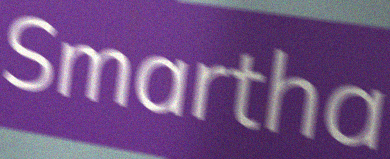
Smartha